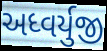
અધ્વર્યુજી